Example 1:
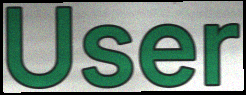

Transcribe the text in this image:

User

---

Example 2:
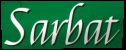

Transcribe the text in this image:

Sarbat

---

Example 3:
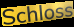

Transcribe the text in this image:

Schloss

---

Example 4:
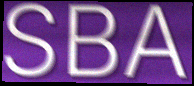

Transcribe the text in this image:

SBA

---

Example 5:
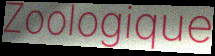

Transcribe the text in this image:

Zoologique